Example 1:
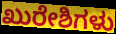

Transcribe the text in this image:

ಖುರೇಶಿಗಳು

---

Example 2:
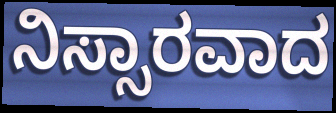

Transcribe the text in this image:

ನಿಸ್ಸಾರವಾದ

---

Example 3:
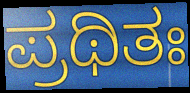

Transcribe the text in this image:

ಪ್ರಥಿತಃ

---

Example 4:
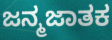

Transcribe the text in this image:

ಜನ್ಮಜಾತಕ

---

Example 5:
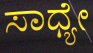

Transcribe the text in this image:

ಸಾಧ್ಯೇ